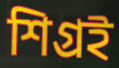
শিগ্রই